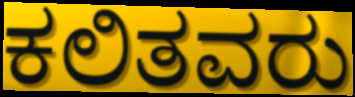
ಕಲಿತವರು